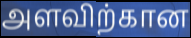
அளவிற்கான